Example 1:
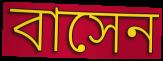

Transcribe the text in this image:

বাসেন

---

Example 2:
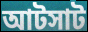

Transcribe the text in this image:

আটসাট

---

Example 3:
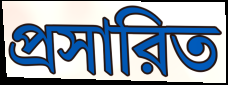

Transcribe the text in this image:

প্রসারিত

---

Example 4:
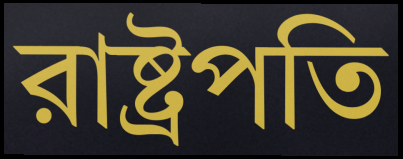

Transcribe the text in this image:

রাষ্ট্রপতি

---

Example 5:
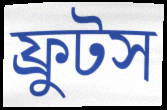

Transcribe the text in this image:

ফ্রুটস